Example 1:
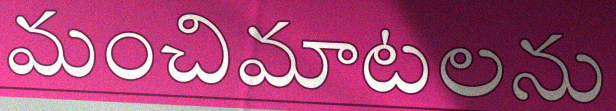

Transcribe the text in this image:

మంచిమాటలను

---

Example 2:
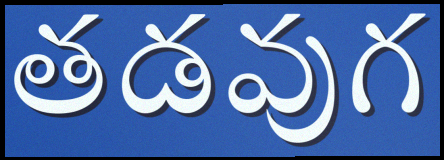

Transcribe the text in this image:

తడవుగ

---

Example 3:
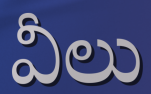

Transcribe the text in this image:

వీలు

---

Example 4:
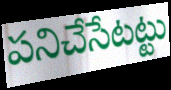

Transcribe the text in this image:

పనిచేసేటట్టు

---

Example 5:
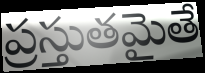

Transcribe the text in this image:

ప్రస్తుతమైతే